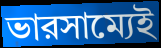
ভারসাম্যেই